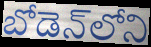
బోడెన్‌లోని